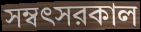
সম্বৎসরকাল